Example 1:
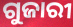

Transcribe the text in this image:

ଗୁଜାରୀ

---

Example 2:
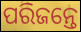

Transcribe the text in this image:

ପରିଜନ୍ତେ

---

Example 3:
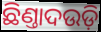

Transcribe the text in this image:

ଛିଣ୍ତାଦଉଡ଼ି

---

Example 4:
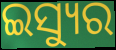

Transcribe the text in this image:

ଇସ୍ୟୁର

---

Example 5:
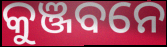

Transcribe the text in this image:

କୁଞ୍ଜବନେ